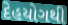
દેહયોગથી